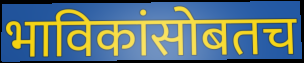
भाविकांसोबतच